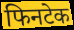
फिनटेक